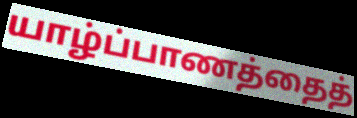
யாழ்ப்பாணத்தைத்